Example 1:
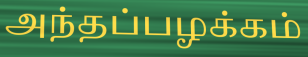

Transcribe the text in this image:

அந்தப்பழக்கம்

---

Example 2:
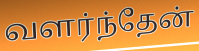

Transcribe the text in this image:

வளர்ந்தேன்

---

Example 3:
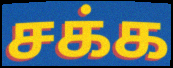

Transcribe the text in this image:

சக்க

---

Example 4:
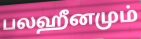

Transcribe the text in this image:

பலஹீனமும்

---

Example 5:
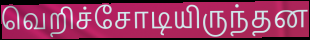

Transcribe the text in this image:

வெறிச்சோடியிருந்தன